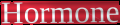
Hormone